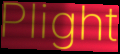
Plight